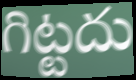
గిట్టదు